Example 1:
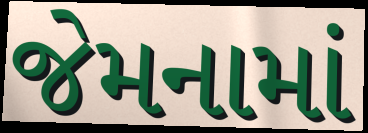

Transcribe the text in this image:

જેમનામાં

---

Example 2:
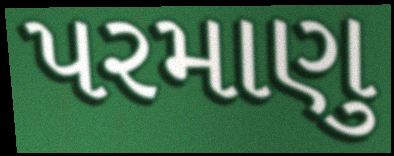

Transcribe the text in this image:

પરમાણુ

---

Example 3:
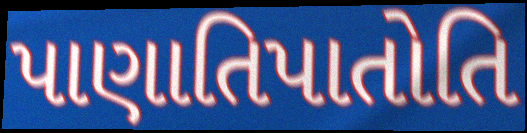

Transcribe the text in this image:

પાણાતિપાતોતિ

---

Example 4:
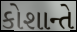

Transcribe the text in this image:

કોશાન્તે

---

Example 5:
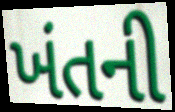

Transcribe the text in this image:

ખંતની